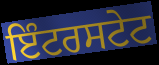
ਇੰਟਰਸਟੇਟ